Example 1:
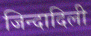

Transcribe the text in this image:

जिन्दादिली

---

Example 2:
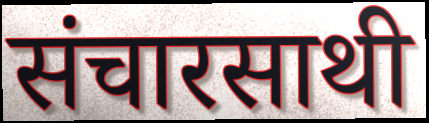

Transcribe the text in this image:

संचारसाथी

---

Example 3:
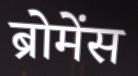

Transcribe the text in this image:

ब्रोमेंस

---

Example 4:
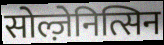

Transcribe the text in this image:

सोल्ज़ेनित्सिन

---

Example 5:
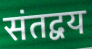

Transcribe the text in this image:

संतद्वय